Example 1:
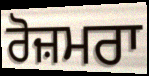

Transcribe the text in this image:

ਰੋਜ਼ਮਰਾ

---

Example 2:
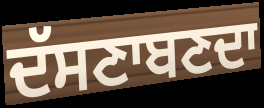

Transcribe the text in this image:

ਦੱਸਣਾਬਣਦਾ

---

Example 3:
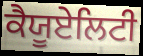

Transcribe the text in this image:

ਕੈਯੂਏਲਿਟੀ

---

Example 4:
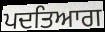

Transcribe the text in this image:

ਪਦਤਿਆਗ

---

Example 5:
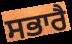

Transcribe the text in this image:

ਸਭਾਰੈ